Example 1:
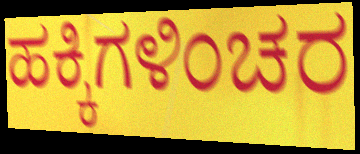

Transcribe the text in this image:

ಹಕ್ಕಿಗಳಿಂಚರ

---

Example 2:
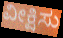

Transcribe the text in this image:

ವೀಕ್ಷಿಸು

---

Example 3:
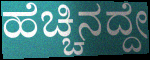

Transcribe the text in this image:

ಹೆಚ್ಚಿನದ್ದೇ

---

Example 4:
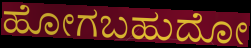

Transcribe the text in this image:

ಹೋಗಬಹುದೋ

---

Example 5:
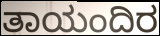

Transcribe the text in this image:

ತಾಯಂದಿರ